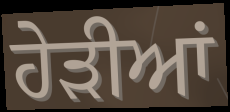
ਹੇੜੀਆਂ